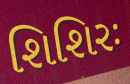
શિશિરઃ